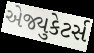
એજ્યુકેટર્સ